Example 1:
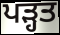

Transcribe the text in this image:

ਪਡ਼੍ਹਤ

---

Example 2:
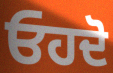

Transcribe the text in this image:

ਓਹਦੋ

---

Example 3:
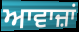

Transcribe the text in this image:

ਆਵਾਜ਼ਾਂ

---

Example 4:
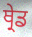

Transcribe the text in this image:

ਥ੍ਰੇਡ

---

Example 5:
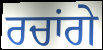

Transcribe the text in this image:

ਰਚਾਂਗੇ